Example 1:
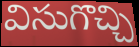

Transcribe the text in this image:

విసుగొచ్చి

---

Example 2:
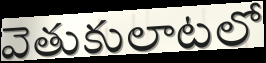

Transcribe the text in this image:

వెతుకులాటలో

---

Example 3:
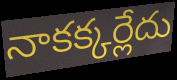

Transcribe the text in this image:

నాకక్కర్లేదు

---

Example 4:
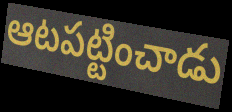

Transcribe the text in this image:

ఆటపట్టించాడు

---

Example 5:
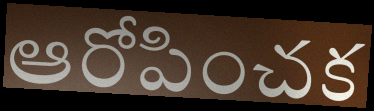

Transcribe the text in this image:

ఆరోపించక